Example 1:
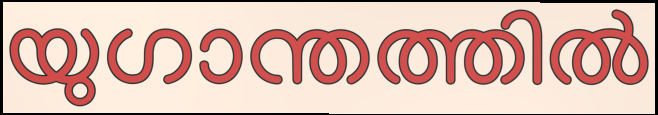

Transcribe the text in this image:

യുഗാന്തത്തിൽ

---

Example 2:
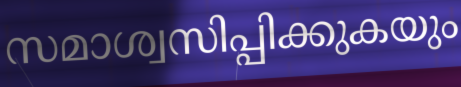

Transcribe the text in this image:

സമാശ്വസിപ്പിക്കുകയും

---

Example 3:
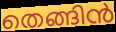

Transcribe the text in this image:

തെങ്ങിൻ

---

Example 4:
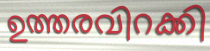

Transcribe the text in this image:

ഉത്തരവിറക്കി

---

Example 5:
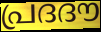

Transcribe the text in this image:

പ്രദദൗ